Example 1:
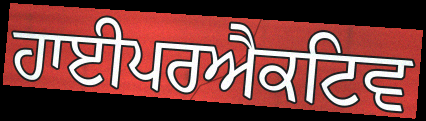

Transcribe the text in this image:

ਹਾਈਪਰਐਕਟਿਵ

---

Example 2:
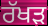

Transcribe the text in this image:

ਰੱਖੜ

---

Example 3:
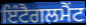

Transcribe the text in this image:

ਇੰਟੈਗਲਮੈਂਟ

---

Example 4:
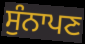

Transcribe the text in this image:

ਸੁੰਨਾਪਣ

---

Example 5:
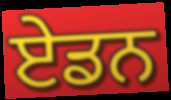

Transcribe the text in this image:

ਏਡਨ